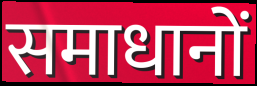
समाधानों